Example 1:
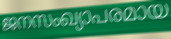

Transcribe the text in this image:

ജനസംഖ്യാപരമായ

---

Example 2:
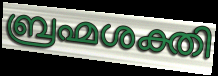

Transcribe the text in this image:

ബ്രഹ്മശക്തി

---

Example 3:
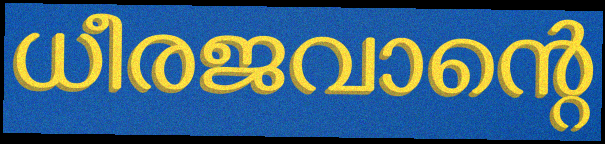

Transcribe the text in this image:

ധീരജവാന്റെ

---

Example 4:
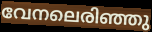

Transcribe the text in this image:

വേനലെരിഞ്ഞു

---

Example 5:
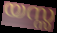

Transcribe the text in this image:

യസ്സ